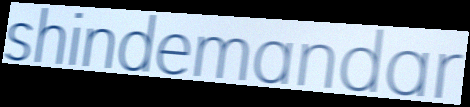
shindemandar